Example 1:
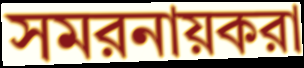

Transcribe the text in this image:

সমরনায়করা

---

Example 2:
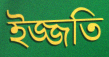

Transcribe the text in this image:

ইজ্জতি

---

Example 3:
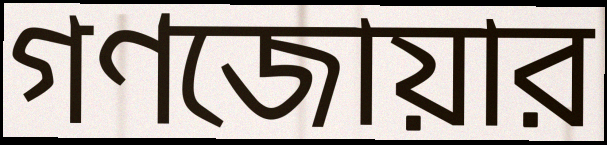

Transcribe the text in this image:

গণজোয়ার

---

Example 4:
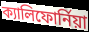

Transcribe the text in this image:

ক্যালিফোর্নিয়া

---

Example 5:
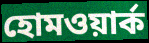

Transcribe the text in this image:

হোমওয়ার্ক